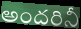
అందరినీ